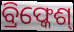
ବ୍ରିଫ୍କେଶ୍